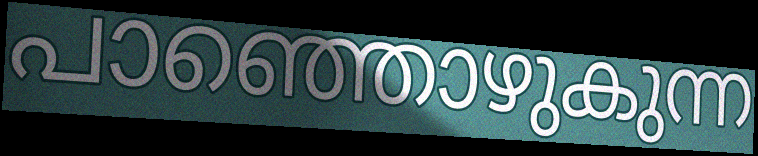
പാഞ്ഞൊഴുകുന്ന